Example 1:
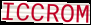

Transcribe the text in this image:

ICCROM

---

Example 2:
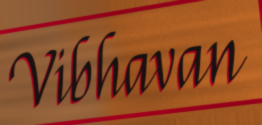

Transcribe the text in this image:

Vibhavan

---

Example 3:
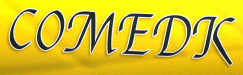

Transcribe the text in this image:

COMEDK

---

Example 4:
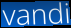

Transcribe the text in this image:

vandi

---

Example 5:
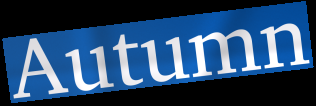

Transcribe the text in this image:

Autumn